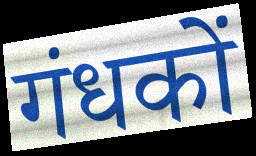
गंधकों